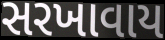
સરખાવાય